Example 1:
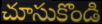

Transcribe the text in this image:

చూసుకొండి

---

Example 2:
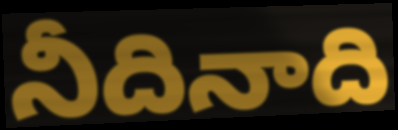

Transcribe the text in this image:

నీదినాది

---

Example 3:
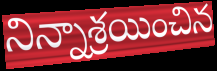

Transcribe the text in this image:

నిన్నాశ్రయించిన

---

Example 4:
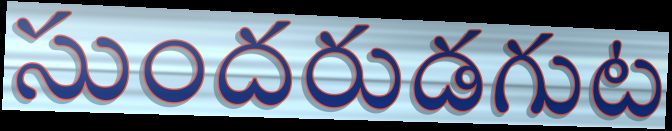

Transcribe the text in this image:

సుందరుడగుట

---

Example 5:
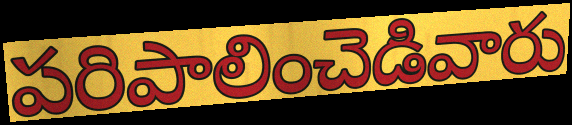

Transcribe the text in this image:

పరిపాలించెడివారు